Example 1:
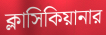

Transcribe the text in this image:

ক্লাসিকিয়ানার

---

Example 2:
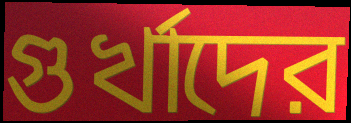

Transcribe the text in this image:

গুর্খাদের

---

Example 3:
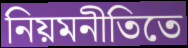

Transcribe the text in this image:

নিয়মনীতিতে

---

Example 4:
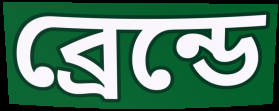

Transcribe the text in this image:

ব্রেন্ডে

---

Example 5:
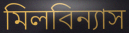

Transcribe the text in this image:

মিলবিন্যাস